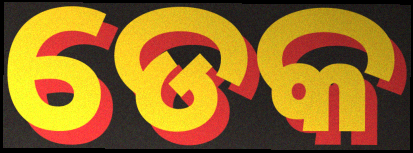
ଡେକ